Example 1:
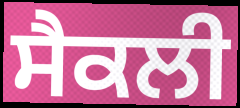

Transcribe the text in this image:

ਸੈਕਲੀ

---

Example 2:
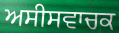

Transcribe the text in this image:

ਅਸੀਸਵਾਚਕ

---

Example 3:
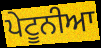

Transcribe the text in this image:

ਪੇਟੂਨੀਆ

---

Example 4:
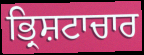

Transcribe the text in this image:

ਭ੍ਰਿਸ਼ਟਾਚਾਰ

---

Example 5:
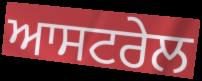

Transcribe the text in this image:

ਆਸਟਰੇਲ